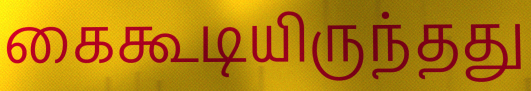
கைகூடியிருந்தது